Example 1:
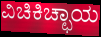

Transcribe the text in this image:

ವಿಚಿಕಿಚ್ಛಾಯ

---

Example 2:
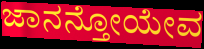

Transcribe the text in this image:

ಜಾನನ್ತೋಯೇವ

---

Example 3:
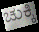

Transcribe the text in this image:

ಚುಕ್ಕಿ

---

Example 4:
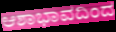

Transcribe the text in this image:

ಆಶಾಭಾವದಿಂದ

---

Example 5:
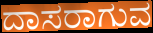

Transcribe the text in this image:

ದಾಸರಾಗುವ